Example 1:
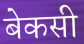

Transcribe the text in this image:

बेकसी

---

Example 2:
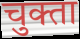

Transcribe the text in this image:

चुक्ता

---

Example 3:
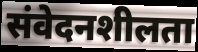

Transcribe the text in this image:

संवेदनशीलता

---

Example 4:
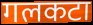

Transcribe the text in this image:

गलकटा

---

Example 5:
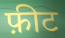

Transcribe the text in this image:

फ़ीट